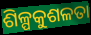
ଶିଳ୍ପକୁଶଳତା